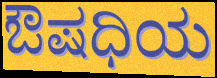
ಔಷಧಿಯ